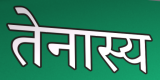
तेनास्य